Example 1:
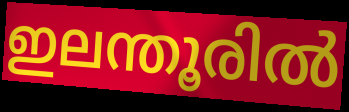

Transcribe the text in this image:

ഇലന്തൂരിൽ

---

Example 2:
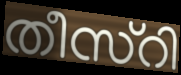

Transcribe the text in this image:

തീസ്റി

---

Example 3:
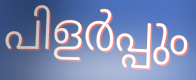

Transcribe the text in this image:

പിളർപ്പും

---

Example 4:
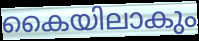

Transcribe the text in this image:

കൈയിലാകും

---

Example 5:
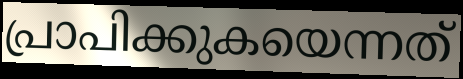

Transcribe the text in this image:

പ്രാപിക്കുകയെന്നത്